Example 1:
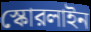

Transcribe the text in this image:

স্কোরলাইন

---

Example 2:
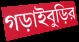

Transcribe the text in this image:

গড়াইবুড়ির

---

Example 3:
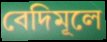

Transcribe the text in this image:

বেদিমূলে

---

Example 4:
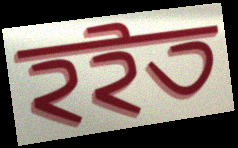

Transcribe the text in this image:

হইত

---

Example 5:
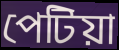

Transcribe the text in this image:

পেটিয়া